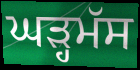
ਘੜ੍ਹਮੱਸ